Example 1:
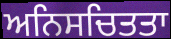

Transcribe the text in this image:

ਅਨਿਸਚਿਤਤਾ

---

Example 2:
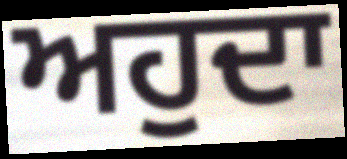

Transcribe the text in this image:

ਅਹੁਦਾ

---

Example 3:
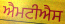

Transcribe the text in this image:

ਐਮਟੀਐਸ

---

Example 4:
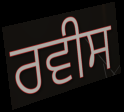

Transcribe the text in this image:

ਰਵੀਸ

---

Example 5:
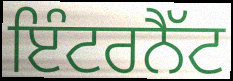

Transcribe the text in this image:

ਇੰਟਰਨੈੱਟ